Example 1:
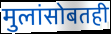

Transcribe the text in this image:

मुलांसोबतही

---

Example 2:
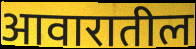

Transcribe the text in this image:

आवारातील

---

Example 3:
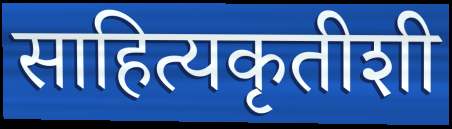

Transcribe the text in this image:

साहित्यकृतीशी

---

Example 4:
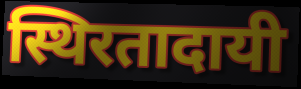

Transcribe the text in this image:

स्थिरतादायी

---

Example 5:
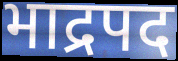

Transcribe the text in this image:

भाद्रपद